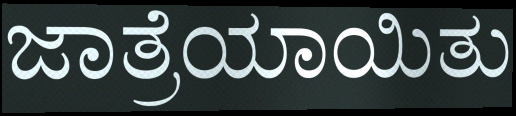
ಜಾತ್ರೆಯಾಯಿತು